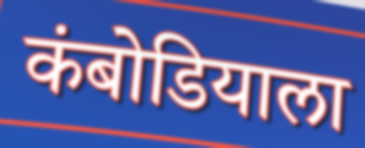
कंबोडियाला